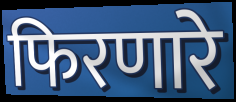
फिरणारे